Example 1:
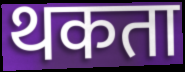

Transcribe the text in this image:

थकता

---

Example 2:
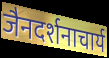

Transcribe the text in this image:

जैनदर्शनाचार्य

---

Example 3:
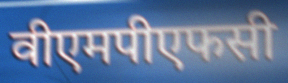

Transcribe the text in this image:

वीएमपीएफसी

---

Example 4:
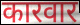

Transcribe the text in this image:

कारवार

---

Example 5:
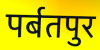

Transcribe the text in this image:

पर्बतपुर